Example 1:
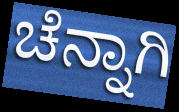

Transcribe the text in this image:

ಚೆನ್ನಾಗಿ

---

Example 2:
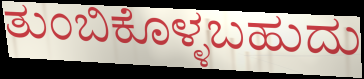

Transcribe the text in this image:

ತುಂಬಿಕೊಳ್ಳಬಹುದು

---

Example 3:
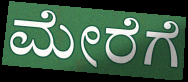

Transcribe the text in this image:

ಮೇರೆಗೆ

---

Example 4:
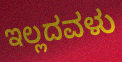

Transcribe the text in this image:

ಇಲ್ಲದವಳು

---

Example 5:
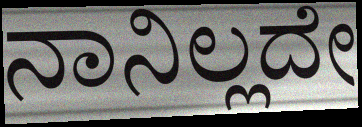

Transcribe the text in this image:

ನಾನಿಲ್ಲದೇ